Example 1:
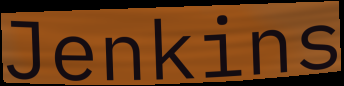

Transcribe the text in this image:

Jenkins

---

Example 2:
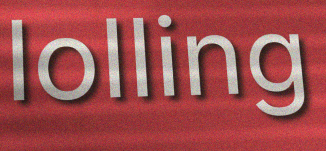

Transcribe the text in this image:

lolling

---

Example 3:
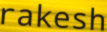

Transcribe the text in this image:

rakesh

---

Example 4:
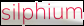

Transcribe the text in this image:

silphium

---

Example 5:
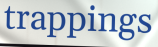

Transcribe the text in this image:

trappings